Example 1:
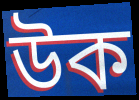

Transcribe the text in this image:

উক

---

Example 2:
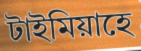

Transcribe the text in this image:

টাইমিয়াহে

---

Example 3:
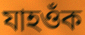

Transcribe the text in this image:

যাহওঁক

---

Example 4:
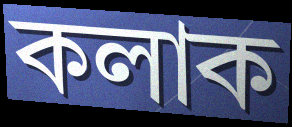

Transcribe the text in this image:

কলাক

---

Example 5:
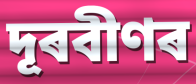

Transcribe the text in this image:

দূৰবীণৰ